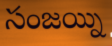
సంజయ్ని